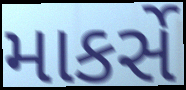
માકર્સે